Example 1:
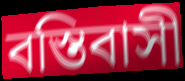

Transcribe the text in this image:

বস্তিবাসী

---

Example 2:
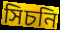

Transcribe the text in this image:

সিচনি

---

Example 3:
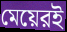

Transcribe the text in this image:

মেয়েরই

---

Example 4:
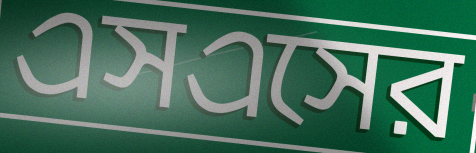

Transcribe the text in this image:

এসএসের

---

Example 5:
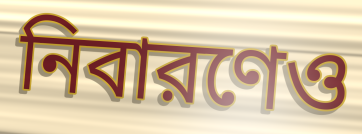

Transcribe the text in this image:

নিবারণেও